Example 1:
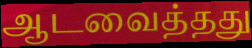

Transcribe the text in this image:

ஆடவைத்தது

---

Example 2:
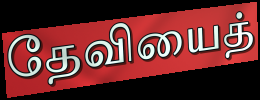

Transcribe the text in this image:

தேவியைத்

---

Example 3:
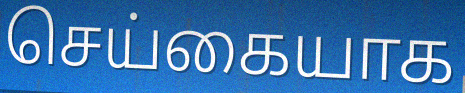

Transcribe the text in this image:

செய்கையாக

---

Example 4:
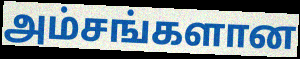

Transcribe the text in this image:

அம்சங்களான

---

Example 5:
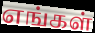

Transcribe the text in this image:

எங்கள்